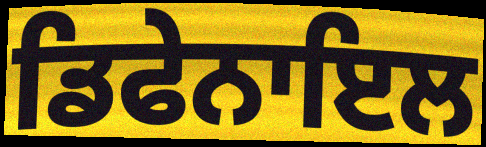
ਡਿਫੇਨਾਇਲ